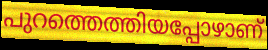
പുറത്തെത്തിയപ്പോഴാണ്